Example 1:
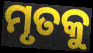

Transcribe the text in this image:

ମୃତକୁ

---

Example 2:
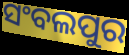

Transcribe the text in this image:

ସଂବଲପୁର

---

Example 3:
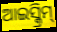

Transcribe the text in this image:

ଆଇସ୍କ୍ରିମ୍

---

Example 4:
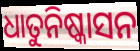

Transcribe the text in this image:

ଧାତୁନିଷ୍କାସନ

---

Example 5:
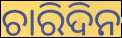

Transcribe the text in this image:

ଚାରିଦିନ